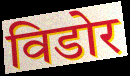
विडोर